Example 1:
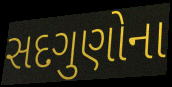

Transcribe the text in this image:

સદગુણોના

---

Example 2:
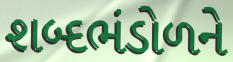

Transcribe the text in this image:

શબ્દભંડોળને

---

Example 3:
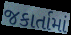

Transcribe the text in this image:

જકાર્તામાં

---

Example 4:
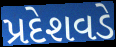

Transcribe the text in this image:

પ્રદેશવડે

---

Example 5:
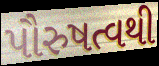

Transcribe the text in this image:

પૌરુષત્વથી